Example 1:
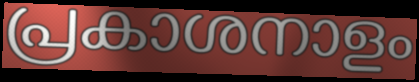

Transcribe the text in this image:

പ്രകാശനാളം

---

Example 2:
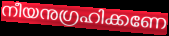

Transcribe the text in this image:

നീയനുഗ്രഹിക്കണേ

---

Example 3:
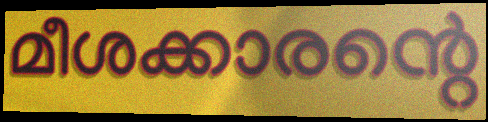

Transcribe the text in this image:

മീശക്കാരന്റെ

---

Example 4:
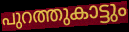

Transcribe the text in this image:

പുറത്തുകാട്ടും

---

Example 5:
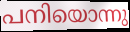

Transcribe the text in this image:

പനിയൊന്നു